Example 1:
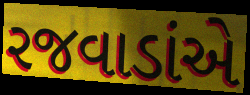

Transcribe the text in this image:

રજવાડાંએ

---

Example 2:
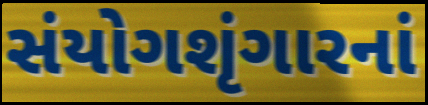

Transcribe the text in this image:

સંયોગશૃંગારનાં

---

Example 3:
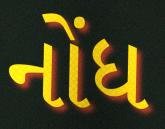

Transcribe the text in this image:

નોંધ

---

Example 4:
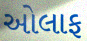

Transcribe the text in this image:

ઓલાફ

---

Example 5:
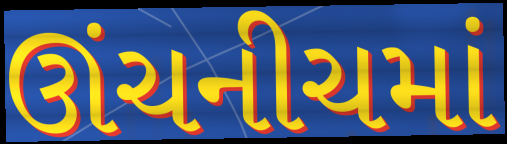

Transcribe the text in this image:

ઊંચનીચમાં